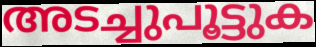
അടച്ചുപൂട്ടുക